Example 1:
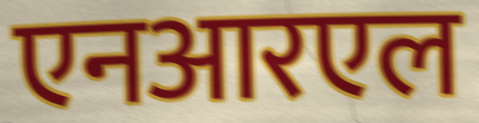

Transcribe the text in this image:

एनआरएल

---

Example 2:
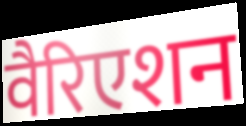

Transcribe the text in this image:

वैरिएशन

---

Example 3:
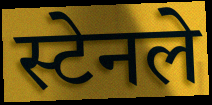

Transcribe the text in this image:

स्टेनले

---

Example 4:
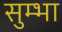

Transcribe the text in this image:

सुम्भा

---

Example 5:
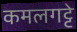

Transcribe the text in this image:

कमलगट्टे